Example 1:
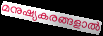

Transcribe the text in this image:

മനുഷ്യകരങ്ങളാൽ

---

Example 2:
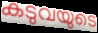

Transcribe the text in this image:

കടുവയുടെ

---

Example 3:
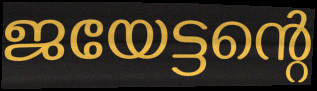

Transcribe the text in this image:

ജയേട്ടന്റെ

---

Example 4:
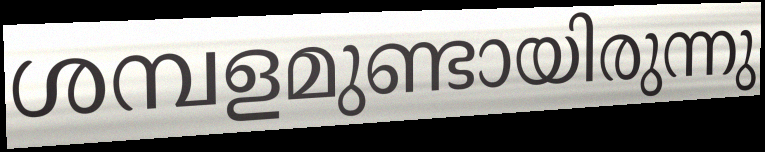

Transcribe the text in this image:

ശമ്പളമുണ്ടായിരുന്നു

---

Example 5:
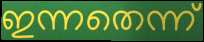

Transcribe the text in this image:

ഇന്നതെന്ന്